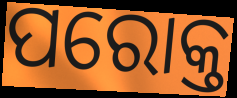
ପରୋକ୍ତ